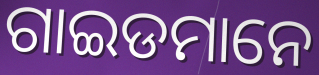
ଗାଇଡମାନେ